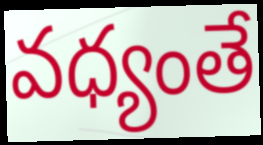
వధ్యంతే